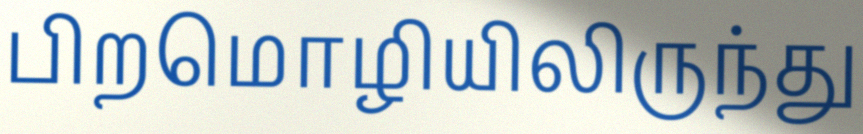
பிறமொழியிலிருந்து